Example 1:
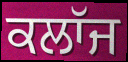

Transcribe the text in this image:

ਕਲਾੱਜ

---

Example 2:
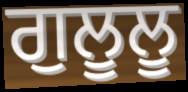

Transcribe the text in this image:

ਗੁਲੂਲੂ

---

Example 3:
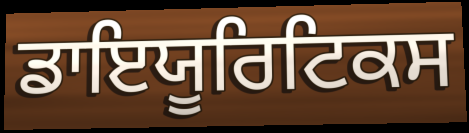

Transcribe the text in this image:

ਡਾਇਯੂਰਿਟਿਕਸ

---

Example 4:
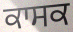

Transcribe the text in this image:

ਕਾਸਕ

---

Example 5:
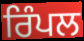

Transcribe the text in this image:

ਰਿੰਪਲ